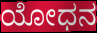
ಯೋಧನ